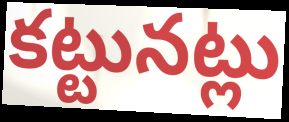
కట్టునట్లు